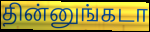
தின்னுங்கடா